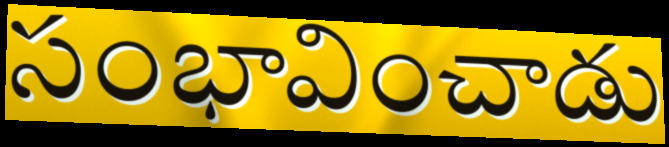
సంభావించాడు